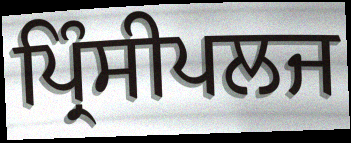
ਪ੍ਰਿੰਸੀਪਲਜ